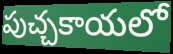
పుచ్చకాయలో